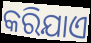
କରିଯାଏ